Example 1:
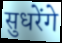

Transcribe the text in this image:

सुधरेंगे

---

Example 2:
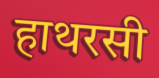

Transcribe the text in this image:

हाथरसी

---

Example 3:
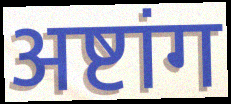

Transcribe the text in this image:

अष्टांग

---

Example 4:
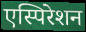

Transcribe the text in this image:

एस्पिरेशन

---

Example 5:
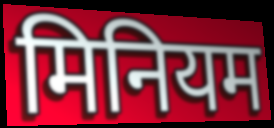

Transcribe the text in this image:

मिनियम